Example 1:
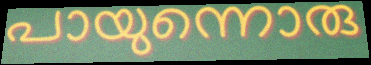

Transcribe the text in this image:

പായുന്നൊരു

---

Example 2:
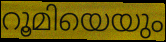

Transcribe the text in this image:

റൂമിയെയും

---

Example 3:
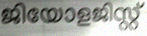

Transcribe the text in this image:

ജിയോളജിസ്റ്റ്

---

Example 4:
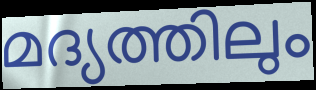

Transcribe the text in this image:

മദ്യത്തിലും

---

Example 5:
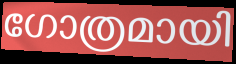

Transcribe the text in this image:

ഗോത്രമായി